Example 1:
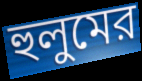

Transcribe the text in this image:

হুলুমের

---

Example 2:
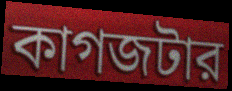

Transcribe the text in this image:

কাগজটার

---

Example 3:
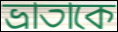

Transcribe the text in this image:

ভ্রাতাকে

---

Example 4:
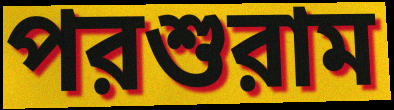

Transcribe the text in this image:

পরশুরাম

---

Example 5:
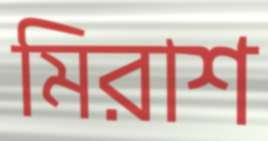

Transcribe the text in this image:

মিরাশ